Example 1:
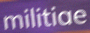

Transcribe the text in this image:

militiae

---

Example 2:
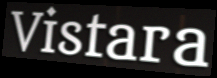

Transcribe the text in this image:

Vistara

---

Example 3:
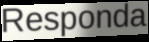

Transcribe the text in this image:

Responda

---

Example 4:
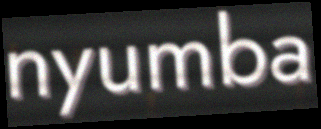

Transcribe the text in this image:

nyumba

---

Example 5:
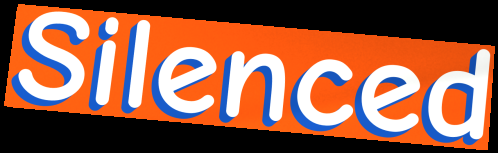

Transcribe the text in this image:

Silenced